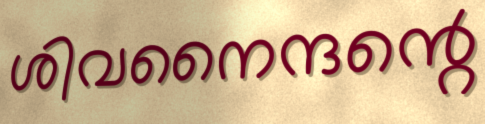
ശിവനൈന്ദന്റെ